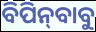
ବିପିନ୍‌ବାବୁ